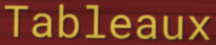
Tableaux